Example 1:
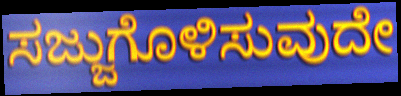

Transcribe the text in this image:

ಸಜ್ಜುಗೊಳಿಸುವುದೇ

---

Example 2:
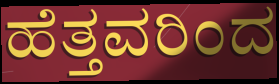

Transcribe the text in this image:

ಹೆತ್ತವರಿಂದ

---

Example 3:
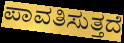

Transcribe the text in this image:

ಪಾವತಿಸುತ್ತದೆ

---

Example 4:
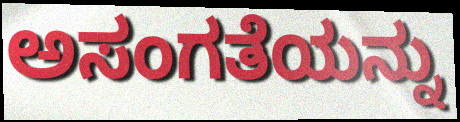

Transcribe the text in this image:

ಅಸಂಗತೆಯನ್ನು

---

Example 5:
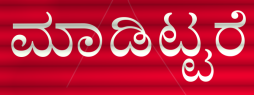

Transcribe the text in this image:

ಮಾಡಿಟ್ಟರೆ